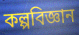
কল্পবিজ্ঞান